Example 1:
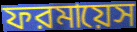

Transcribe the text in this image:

ফরমায়েস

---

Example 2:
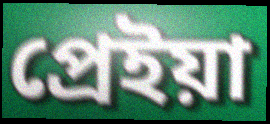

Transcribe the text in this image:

প্রেইয়া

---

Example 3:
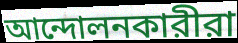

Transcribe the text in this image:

আন্দোলনকারীরা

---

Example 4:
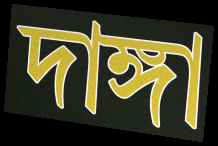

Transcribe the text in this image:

দাঙ্গা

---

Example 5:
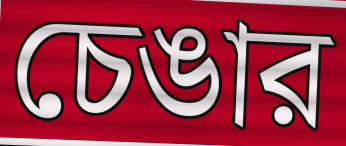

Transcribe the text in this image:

চেঙার